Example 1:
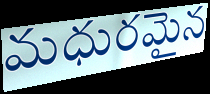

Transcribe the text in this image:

మధురమైన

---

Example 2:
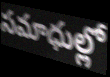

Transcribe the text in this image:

సమాధుల్లో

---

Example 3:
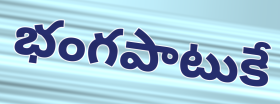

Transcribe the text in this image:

భంగపాటుకే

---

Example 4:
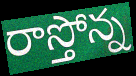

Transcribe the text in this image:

రాస్తోన్న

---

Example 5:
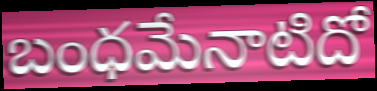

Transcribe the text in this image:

బంధమేనాటిదో